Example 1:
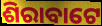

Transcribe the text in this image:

ଶିରାବାଟେ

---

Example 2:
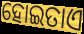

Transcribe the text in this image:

ହୋଇତାଏ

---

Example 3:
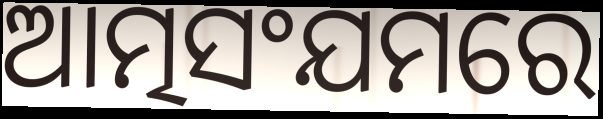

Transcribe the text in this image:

ଆତ୍ମସଂଯମରେ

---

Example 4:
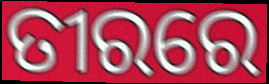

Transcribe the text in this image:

ତୀରରେ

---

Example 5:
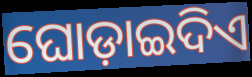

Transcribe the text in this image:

ଘୋଡ଼ାଇଦିଏ